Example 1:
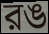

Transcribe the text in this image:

রঙ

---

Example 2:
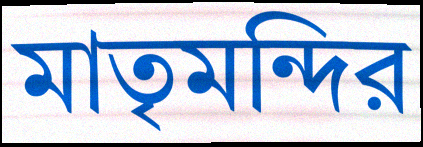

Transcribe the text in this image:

মাতৃমন্দির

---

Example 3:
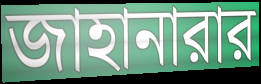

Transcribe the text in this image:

জাহানারার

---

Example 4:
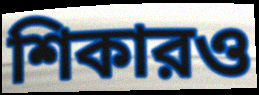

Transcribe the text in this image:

শিকারও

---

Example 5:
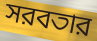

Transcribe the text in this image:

সরবতার